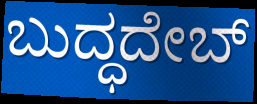
ಬುದ್ಧದೇಬ್